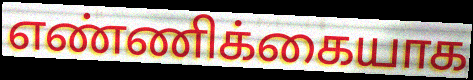
எண்ணிக்கையாக